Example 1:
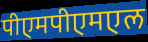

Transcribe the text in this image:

पीएमपीएमएल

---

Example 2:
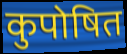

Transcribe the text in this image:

कुपोषित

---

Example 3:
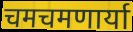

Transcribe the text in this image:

चमचमणार्या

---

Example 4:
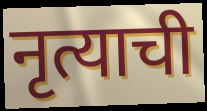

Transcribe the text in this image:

नृत्याची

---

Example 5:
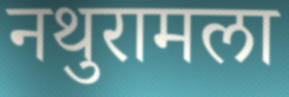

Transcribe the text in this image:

नथुरामला